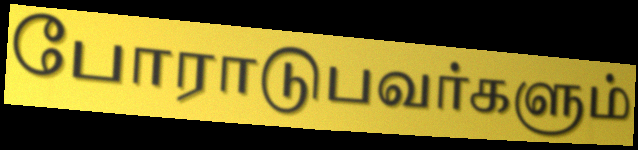
போராடுபவர்களும்